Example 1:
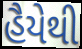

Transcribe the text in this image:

હૈયેથી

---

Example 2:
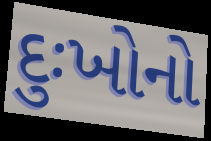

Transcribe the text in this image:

દુઃખોનો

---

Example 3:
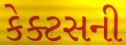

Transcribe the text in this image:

કેક્ટસની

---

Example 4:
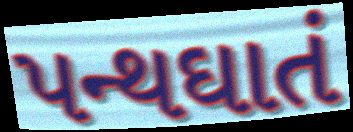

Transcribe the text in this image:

પન્થઘાતં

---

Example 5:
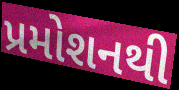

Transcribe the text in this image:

પ્રમોશનથી